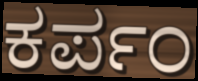
ಕರ್ಪಂ